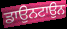
ਡਾਉਨਟਾਉਨ